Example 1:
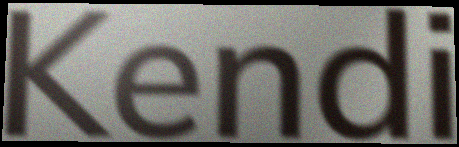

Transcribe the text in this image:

Kendi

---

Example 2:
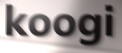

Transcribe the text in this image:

koogi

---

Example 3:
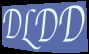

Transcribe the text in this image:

DLDD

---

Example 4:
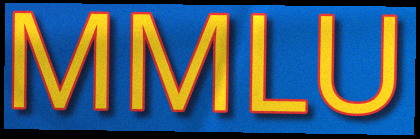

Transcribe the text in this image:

MMLU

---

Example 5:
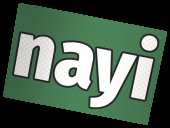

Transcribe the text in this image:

nayi